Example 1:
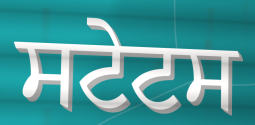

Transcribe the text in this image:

ਸਟੇਟਸ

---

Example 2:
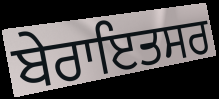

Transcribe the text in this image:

ਬੇਰਾਇਤਸਰ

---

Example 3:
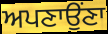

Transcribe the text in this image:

ਅਪਣਾਉਂਣਾ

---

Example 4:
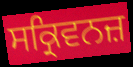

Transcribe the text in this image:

ਸਕ੍ਰਿਵਨਜ਼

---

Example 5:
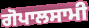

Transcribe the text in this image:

ਗੋਪਾਲਸਾਮੀ